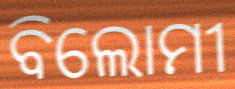
ବିଲୋମୀ